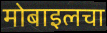
मोबाइलचा